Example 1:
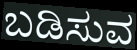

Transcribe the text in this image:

ಬಡಿಸುವ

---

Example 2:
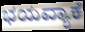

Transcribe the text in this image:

ಭಯವ್ಯಾಕೆ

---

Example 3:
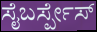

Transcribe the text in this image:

ಸೈಬರ್ಸ್ಪೇಸ್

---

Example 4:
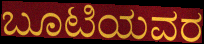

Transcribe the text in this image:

ಬೂಟಿಯವರ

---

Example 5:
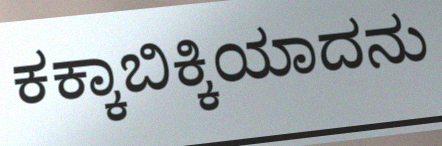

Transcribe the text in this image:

ಕಕ್ಕಾಬಿಕ್ಕಿಯಾದನು